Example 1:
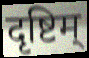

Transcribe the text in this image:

दृष्टिम्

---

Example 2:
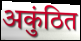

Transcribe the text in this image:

अकुंठित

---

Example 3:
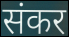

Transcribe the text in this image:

संकर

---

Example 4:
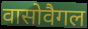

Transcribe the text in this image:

वासोवैगल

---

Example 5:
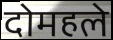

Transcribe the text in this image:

दोमहले